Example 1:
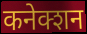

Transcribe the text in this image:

कनेक्शन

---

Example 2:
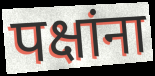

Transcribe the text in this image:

पक्षांना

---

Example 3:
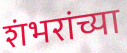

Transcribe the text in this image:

शंभरांच्या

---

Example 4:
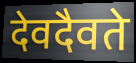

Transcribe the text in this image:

देवदैवते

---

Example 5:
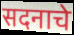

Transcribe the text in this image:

सदनाचे